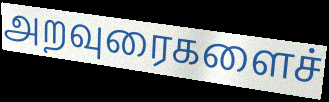
அறவுரைகளைச்